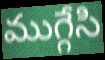
ముగ్గేసి